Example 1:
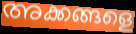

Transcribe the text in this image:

അക്കങ്ങളെ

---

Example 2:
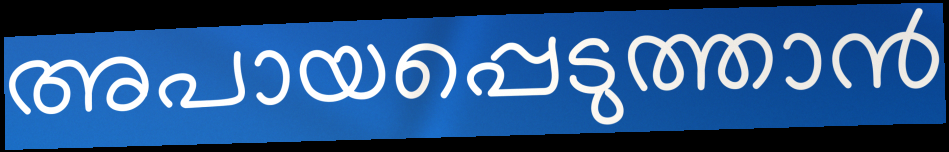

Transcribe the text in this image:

അപായപ്പെടുത്താൻ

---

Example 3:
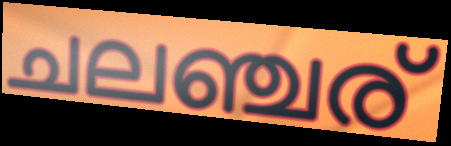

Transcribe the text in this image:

ചലഞ്ചര്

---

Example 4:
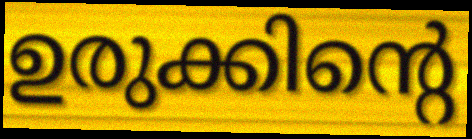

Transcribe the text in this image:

ഉരുക്കിന്റെ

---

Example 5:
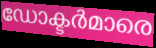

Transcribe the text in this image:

ഡോക്ടർമാരെ